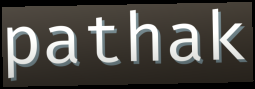
pathak